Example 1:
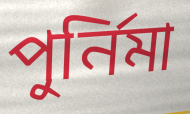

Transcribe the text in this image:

পুর্নিমা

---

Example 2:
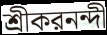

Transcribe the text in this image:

শ্রীকরনন্দী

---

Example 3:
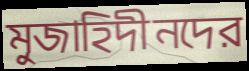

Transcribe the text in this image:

মুজাহিদীনদের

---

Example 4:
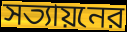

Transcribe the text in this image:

সত্যায়নের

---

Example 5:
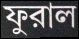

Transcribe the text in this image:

ফুরাল